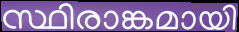
സ്ഥിരാങ്കമായി